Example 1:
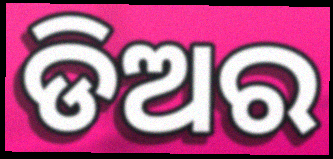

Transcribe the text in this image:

ଡିଅର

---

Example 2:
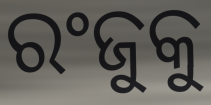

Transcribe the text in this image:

ରଂଜୁକୁ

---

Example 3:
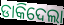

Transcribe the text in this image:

ଡାକିଦେଲା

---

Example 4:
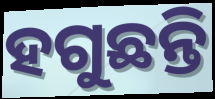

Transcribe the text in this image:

ହଗୁଛନ୍ତି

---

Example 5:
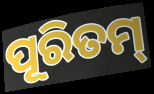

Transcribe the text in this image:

ପୂରିତମ୍